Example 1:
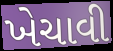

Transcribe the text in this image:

ખેચાવી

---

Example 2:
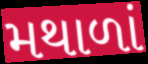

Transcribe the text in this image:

મથાળાં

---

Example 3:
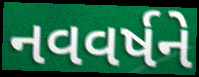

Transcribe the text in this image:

નવવર્ષને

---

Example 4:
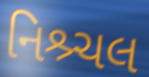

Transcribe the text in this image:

નિશ્ર્ચલ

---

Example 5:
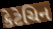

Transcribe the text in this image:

કેટેચિન